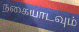
நகையாடவும்